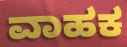
ವಾಹಕ